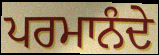
ਪਰਮਾਨੰਦੇ